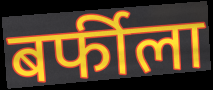
बर्फीला